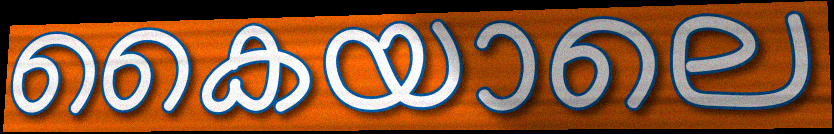
കൈയാലെ